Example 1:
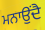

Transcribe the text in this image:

ਮਨਾਉਂਦੈ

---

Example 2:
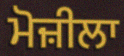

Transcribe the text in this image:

ਮੋਜ਼ੀਲਾ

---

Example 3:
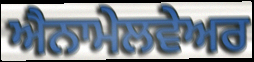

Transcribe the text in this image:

ਐਨਾਮੇਲਵੇਅਰ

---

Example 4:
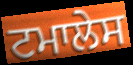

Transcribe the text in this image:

ਟਮਾਲੇਸ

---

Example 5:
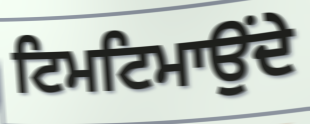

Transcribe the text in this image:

ਟਿਮਟਿਮਾਉਂਦੇ